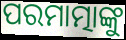
ପରମାତ୍ମାଙ୍କୁ